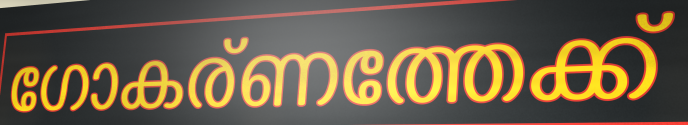
ഗോകര്ണത്തേക്ക്